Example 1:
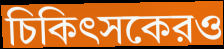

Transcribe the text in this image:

চিকিৎসকেরও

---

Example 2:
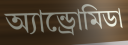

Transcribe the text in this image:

অ্যান্ড্রোমিডা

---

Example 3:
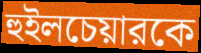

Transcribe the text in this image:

হুইলচেয়ারকে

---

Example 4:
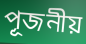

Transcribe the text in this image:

পূজনীয়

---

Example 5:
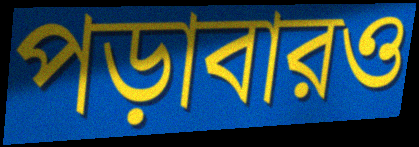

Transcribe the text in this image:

পড়াবারও